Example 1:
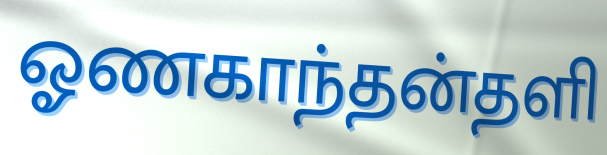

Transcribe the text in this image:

ஓணகாந்தன்தளி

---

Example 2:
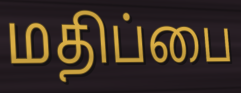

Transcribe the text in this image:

மதிப்பை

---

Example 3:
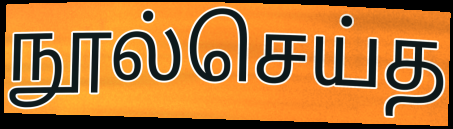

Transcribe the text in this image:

நூல்செய்த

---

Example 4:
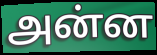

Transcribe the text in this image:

அன்ன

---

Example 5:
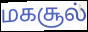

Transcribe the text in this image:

மகசூல்